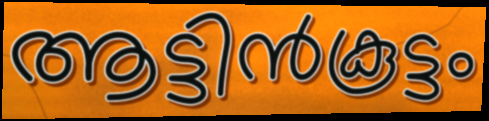
ആട്ടിൻകൂട്ടം